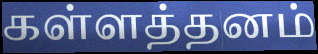
கள்ளத்தனம்